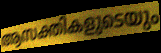
ആസക്തികളുടെയും